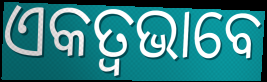
ଏକତ୍ଵଭାବେ